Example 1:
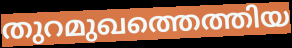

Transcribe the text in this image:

തുറമുഖത്തെത്തിയ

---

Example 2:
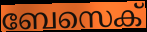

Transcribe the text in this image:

ബേസെക്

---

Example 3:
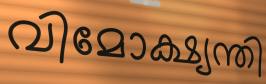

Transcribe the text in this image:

വിമോക്ഷ്യന്തി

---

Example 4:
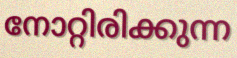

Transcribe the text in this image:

നോറ്റിരിക്കുന്ന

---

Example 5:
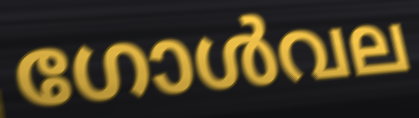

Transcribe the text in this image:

ഗോൾവല